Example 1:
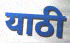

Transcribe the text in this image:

याठी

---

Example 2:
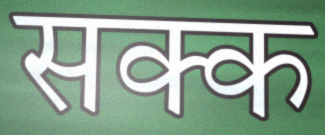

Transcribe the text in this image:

सक्क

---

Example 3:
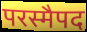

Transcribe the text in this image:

परस्मैपद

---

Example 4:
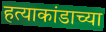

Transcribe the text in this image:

हत्याकांडाच्या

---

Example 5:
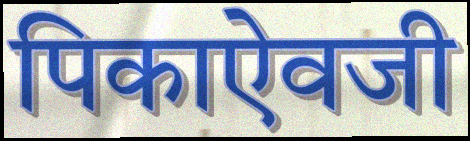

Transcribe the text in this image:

पिकाऐवजी